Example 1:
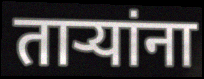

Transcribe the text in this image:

तार्‍यांना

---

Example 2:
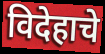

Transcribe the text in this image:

विदेहाचे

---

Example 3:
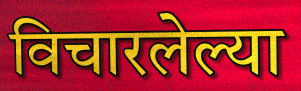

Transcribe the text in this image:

विचारलेल्या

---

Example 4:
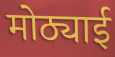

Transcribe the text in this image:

मोठ्याई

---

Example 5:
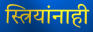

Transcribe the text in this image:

स्त्रियांनाही